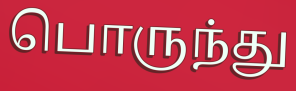
பொருந்து